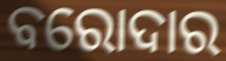
ବରୋଦାର